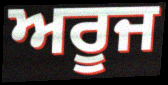
ਅਰੂਜ